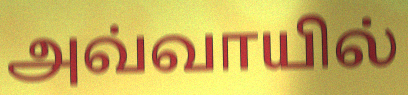
அவ்வாயில்